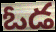
ఓడ